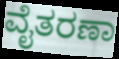
ವೈತರಣಾ